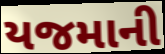
યજમાની